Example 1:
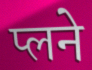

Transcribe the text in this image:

प्लने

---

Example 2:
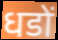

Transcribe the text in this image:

धडों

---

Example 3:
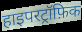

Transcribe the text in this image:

हाइपरट्रॉफ़िक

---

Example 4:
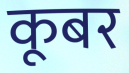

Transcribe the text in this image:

कूबर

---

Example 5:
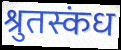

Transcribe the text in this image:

श्रुतस्कंध